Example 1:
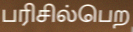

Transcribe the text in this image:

பரிசில்பெற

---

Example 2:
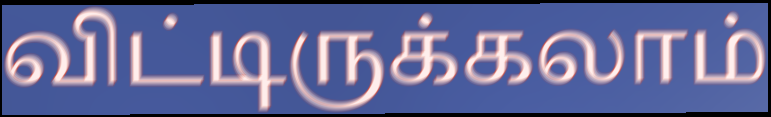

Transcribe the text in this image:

விட்டிருக்கலாம்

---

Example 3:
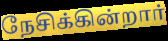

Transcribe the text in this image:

நேசிக்கின்றார்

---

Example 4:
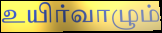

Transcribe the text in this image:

உயிர்வாழும்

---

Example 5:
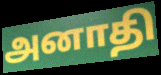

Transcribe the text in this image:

அனாதி